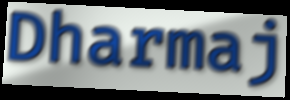
Dharmaj